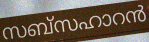
സബ്സഹാറൻ